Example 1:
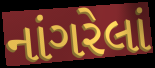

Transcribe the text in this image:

નાંગરેલાં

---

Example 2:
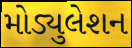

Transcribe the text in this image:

મોડ્યુલેશન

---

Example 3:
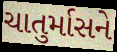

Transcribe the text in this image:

ચાતુર્માસને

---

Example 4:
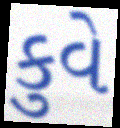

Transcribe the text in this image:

કુવે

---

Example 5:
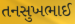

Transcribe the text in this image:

તનસુખભાઈ